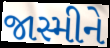
જાસ્મીને